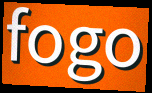
fogo